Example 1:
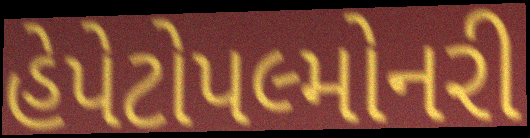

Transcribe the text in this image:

હેપેટોપલ્મોનરી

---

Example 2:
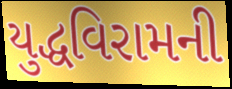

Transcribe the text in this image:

યુદ્ધવિરામની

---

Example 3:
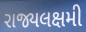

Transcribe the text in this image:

રાજ્યલક્ષમી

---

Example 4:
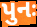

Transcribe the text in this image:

પુનઃ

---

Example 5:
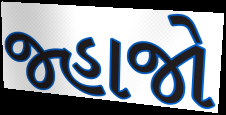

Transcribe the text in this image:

જ્હાજો